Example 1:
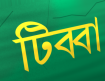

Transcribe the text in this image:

টিব্বা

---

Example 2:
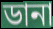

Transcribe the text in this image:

ডানা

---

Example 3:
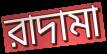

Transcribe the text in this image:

রাদামা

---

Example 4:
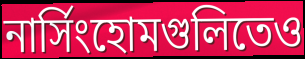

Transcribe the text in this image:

নার্সিংহোমগুলিতেও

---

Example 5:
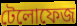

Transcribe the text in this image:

টেলোফেজ